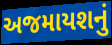
અજમાયશનું